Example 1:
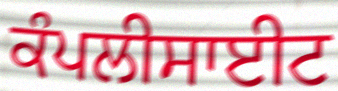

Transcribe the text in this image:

ਕੰਪਲੀਸਾਈਟ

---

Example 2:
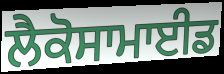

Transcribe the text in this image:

ਲੈਕੋਸਾਮਾਈਡ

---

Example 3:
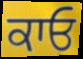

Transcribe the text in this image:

ਕਾਓ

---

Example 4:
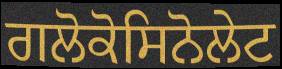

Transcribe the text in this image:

ਗਲੋਕੋਸਿਨੋਲੇਟ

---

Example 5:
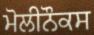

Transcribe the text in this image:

ਮੋਲੀਨੌਕਸ